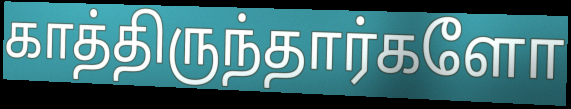
காத்திருந்தார்களோ